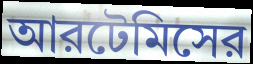
আরটেমিসের